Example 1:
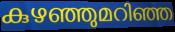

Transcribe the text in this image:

കുഴഞ്ഞുമറിഞ്ഞ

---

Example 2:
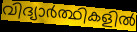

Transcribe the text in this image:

വിദ്യാർത്ഥികളിൽ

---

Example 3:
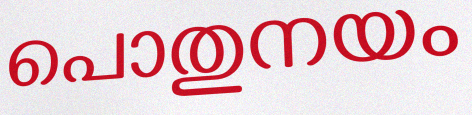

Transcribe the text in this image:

പൊതുനയം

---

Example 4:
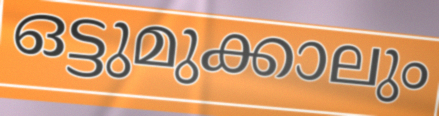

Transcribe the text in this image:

ഒട്ടുമുക്കാലും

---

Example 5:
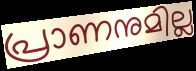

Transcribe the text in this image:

പ്രാണനുമില്ല